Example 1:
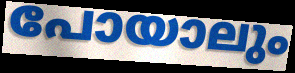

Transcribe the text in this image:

പോയാലും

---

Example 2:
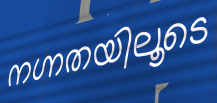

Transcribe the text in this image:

നഗ്നതയിലൂടെ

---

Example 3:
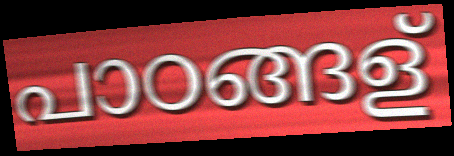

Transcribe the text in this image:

പാഠങ്ങള്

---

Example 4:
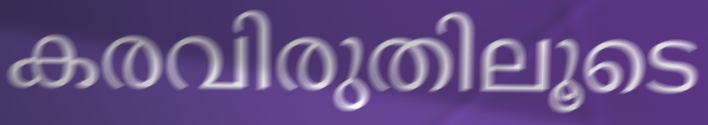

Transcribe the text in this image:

കരവിരുതിലൂടെ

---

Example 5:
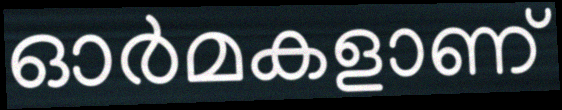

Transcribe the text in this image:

ഓർമകളാണ്